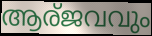
ആര്ജവവും